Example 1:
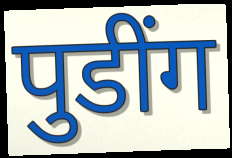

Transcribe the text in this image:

पुडींग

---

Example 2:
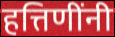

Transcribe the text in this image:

हत्तिणींनी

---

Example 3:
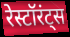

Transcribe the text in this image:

रेस्टॉरंट्स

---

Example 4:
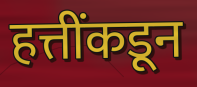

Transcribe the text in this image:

हत्तींकडून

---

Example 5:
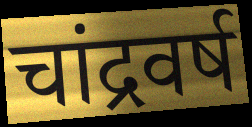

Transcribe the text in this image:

चांद्रवर्ष